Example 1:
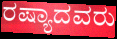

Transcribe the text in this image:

ರಷ್ಯಾದವರು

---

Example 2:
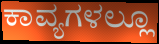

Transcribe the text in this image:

ಕಾವ್ಯಗಳಲ್ಲೂ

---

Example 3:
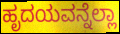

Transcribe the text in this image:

ಹೃದಯವನ್ನೆಲ್ಲಾ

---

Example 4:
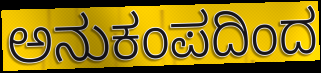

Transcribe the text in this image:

ಅನುಕಂಪದಿಂದ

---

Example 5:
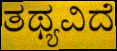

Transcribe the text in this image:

ತಥ್ಯವಿದೆ